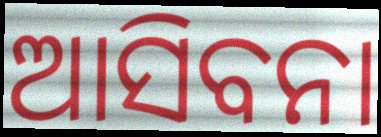
ଆସିବନା